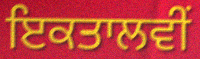
ਇਕਤਾਲਵੀਂ